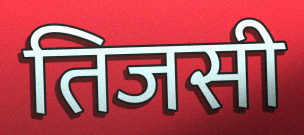
तिजसी